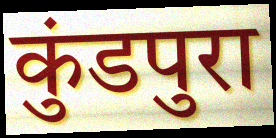
कुंडपुरा